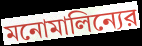
মনোমালিন্যের